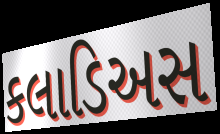
કલાડિઅસ